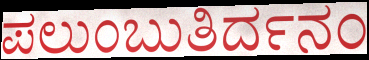
ಪಲುಂಬುತಿರ್ದನಂ